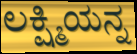
ಲಕ್ಷ್ಮಿಯನ್ನ